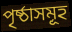
পৃষ্ঠাসমূহ